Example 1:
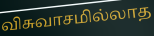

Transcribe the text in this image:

விசுவாசமில்லாத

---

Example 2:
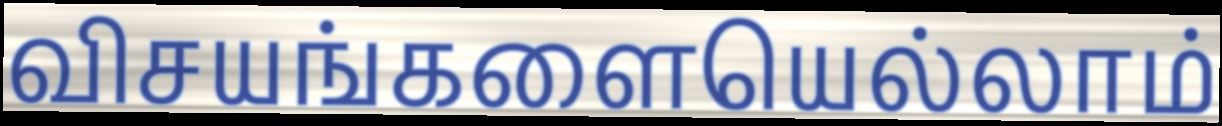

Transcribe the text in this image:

விசயங்களையெல்லாம்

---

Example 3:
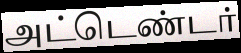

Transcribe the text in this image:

அட்டெண்டர்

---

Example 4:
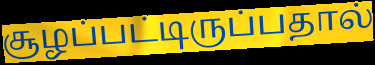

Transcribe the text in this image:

சூழப்பட்டிருப்பதால்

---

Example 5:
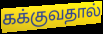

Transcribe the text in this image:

கக்குவதால்